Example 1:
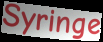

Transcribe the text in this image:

Syringe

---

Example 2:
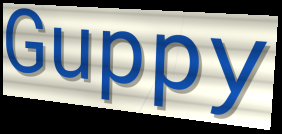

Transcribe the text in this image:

Guppy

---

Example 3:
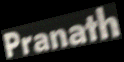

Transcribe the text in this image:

Pranath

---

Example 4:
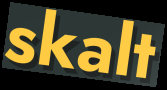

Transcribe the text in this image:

skalt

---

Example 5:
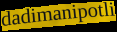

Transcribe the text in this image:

dadimanipotli